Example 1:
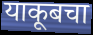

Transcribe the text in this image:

याकूबचा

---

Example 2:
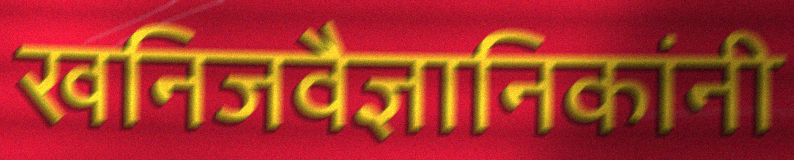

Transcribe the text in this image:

खनिजवैज्ञानिकांनी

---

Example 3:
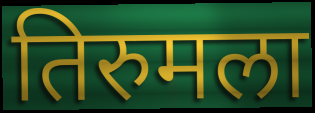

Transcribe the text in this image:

तिरुमला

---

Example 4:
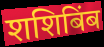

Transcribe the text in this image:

शशिबिंब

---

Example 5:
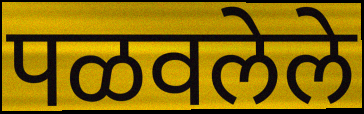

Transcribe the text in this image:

पळवलेले